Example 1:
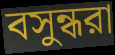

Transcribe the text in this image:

বসুন্ধরা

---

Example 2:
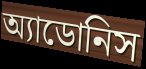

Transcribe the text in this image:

অ্যাডোনিস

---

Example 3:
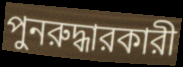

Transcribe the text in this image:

পুনরুদ্ধারকারী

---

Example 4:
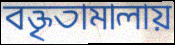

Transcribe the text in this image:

বক্তৃতামালায়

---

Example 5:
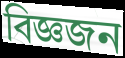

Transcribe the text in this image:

বিজ্ঞজন